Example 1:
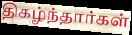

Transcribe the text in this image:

திகழ்ந்தார்கள்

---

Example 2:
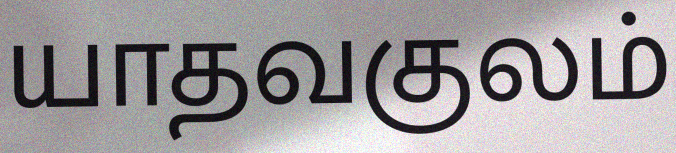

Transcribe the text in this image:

யாதவகுலம்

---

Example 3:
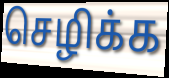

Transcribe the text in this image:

செழிக்க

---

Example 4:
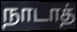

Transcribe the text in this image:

நாடாத்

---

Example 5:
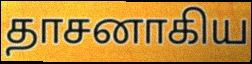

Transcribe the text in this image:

தாசனாகிய